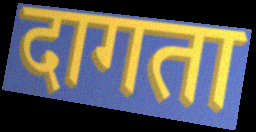
दागता